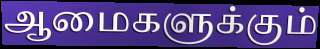
ஆமைகளுக்கும்